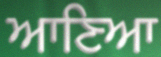
ਆਣਿਆ